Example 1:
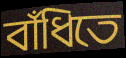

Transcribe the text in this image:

বাঁধিতে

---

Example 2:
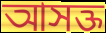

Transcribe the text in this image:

আসক্ত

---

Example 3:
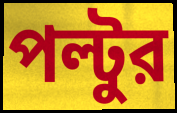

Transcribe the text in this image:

পল্টুর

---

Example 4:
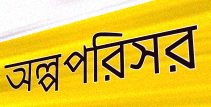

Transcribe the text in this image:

অল্পপরিসর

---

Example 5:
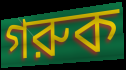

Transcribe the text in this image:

গরুক